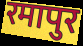
रमापुर